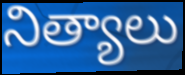
నిత్యాలు